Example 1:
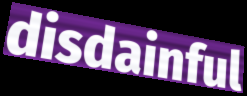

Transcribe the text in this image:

disdainful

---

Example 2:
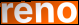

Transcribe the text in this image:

reno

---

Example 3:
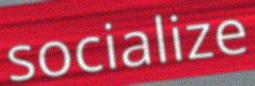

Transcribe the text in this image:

socialize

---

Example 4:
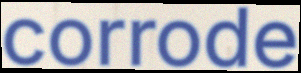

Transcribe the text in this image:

corrode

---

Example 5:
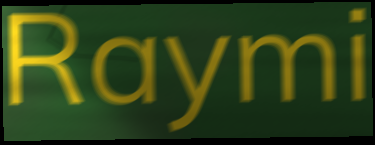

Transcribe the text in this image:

Raymi